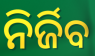
ନିର୍ଜିବ